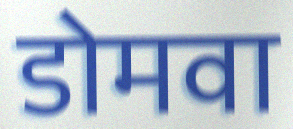
डोमवा